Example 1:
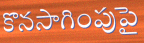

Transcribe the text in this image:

కొనసాగింపుపై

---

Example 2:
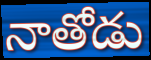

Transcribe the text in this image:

నాతోడు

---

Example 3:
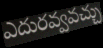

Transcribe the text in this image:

ఎదురవ్వవచ్చు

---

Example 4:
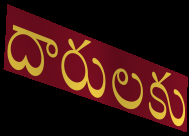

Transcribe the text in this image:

దారులకు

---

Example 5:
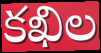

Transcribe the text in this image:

కఖిల